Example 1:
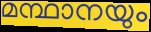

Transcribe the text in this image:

മന്ഥാനയും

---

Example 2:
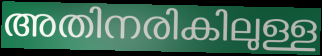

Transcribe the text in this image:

അതിനരികിലുള്ള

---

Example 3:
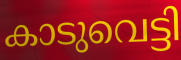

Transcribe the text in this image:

കാടുവെട്ടി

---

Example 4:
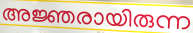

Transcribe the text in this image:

അജ്ഞരായിരുന്ന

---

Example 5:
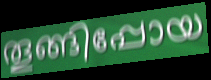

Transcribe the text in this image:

തൂങ്ങിപ്പോയ